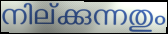
നില്ക്കുന്നതും